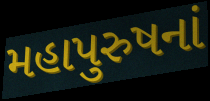
મહાપુરુષનાં